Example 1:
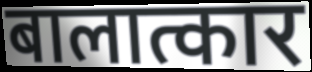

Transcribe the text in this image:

बालात्कार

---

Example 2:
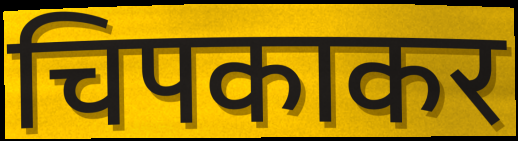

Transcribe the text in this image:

चिपकाकर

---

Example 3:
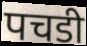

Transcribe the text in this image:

पचडी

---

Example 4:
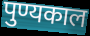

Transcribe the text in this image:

पुण्यकाल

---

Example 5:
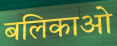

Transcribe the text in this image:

बलिकाओ